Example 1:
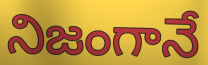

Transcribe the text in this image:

నిజంగానే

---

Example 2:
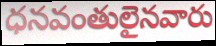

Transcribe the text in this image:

ధనవంతులైనవారు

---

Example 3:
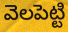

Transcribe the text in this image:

వెలపెట్టి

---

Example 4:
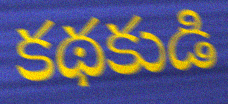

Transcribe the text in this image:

కథకుడి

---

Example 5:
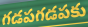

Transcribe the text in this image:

గడపగడపకు